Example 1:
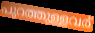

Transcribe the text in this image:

പുറത്തുള്ളവര്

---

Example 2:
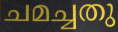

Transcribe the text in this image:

ചമച്ചതു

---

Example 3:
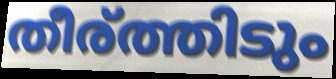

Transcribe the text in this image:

തീര്ത്തിടും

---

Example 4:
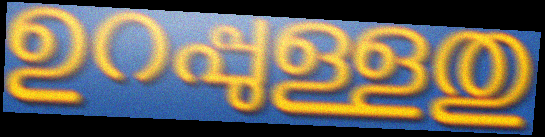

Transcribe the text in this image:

ഉറപ്പുള്ളതു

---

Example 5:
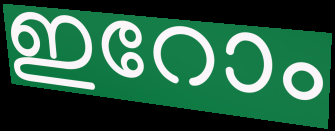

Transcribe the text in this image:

ഇറോം